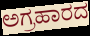
ಅಗ್ರಹಾರದ